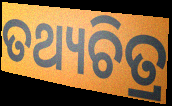
ତଥ୍ୟଚିତ୍ର